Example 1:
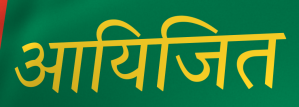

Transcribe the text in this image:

आयिजित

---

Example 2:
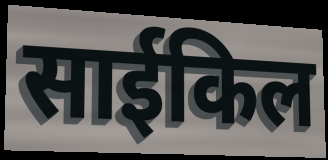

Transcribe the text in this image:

साईकिल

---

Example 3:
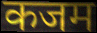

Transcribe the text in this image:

कजम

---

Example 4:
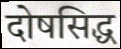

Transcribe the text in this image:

दोषसिद्ध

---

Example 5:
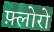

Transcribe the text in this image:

फ़्लोरो